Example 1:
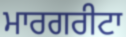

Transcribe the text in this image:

ਮਾਰਗਰੀਟਾ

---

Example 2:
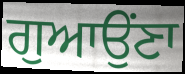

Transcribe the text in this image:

ਗੁਆਉਂਣਾ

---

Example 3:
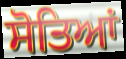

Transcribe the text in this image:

ਸੋਤਿਆਂ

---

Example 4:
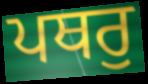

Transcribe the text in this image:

ਪਥਰੁ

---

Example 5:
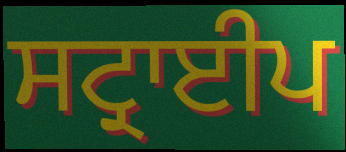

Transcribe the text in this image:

ਸਟ੍ਰਾਈਪ